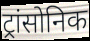
ट्रांसोनिक